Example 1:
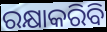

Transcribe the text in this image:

ରକ୍ଷାକରିବି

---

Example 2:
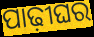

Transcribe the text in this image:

ପାଢ଼ୀଘର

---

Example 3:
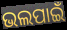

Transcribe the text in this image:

ଭଲପାଇଁ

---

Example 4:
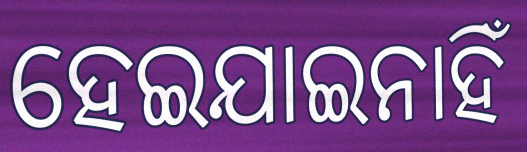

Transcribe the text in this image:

ହେଇଯାଇନାହିଁ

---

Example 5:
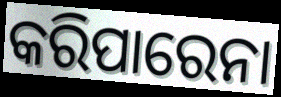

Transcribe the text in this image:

କରିପାରେନା